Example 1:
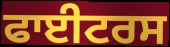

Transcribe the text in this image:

ਫਾਈਟਰਸ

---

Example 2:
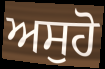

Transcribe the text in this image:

ਅਸੁਹੋ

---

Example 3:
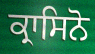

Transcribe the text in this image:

ਕ੍ਰਾਸਿਨੋ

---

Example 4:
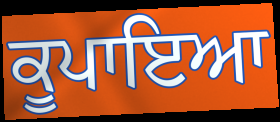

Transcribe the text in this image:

ਕੂਪਾਇਆ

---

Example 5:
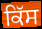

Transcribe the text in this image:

ਕਿੱਸ